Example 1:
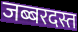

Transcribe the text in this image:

जब्बरदस्त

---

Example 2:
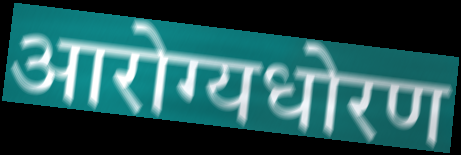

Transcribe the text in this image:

आरोग्यधोरण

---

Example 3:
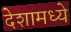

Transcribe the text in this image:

देशामध्ये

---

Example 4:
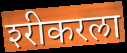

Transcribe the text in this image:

श्रीकरला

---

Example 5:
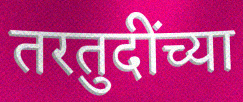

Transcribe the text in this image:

तरतुदींच्या